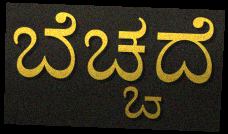
ಬೆಚ್ಚದೆ